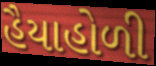
હૈયાહોળી